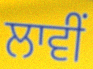
ਲਾਵੀਂ